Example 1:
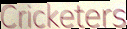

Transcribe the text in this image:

Cricketers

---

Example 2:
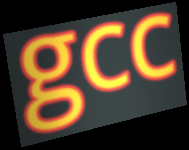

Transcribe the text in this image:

gcc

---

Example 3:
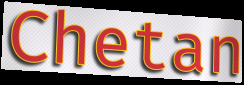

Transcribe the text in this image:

Chetan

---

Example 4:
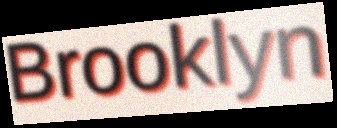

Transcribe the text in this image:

Brooklyn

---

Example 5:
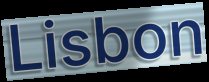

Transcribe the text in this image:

Lisbon